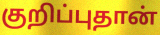
குறிப்புதான்